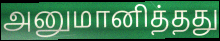
அனுமானித்தது